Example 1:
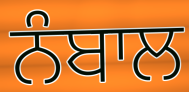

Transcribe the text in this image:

ਨੰਬਾਲ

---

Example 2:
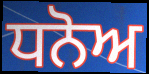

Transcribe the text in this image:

ਧਨੋਅ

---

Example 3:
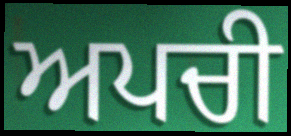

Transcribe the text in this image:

ਅਪਚੀ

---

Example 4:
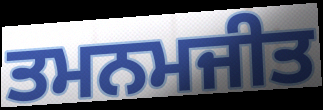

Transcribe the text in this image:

ਤਮਨਮਜੀਤ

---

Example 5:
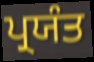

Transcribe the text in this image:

ਪ੍ਰਯੰਤ